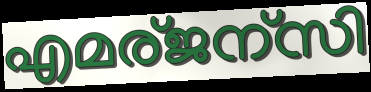
എമര്ജന്സി